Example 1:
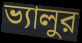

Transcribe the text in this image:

ভ্যালুর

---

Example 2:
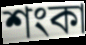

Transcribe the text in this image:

শংকা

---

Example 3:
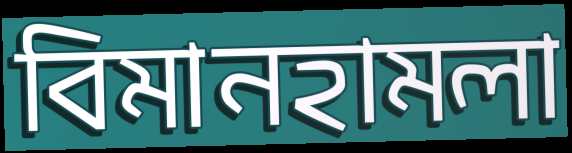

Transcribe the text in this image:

বিমানহামলা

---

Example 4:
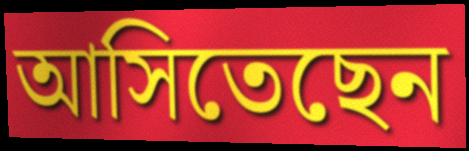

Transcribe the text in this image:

আসিতেছেন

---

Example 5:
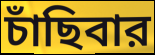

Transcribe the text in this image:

চাঁছিবার